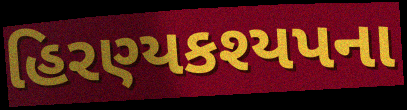
હિરણ્યકશ્યપના